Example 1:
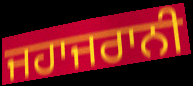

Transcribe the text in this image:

ਜਹਾਜਰਾਨੀ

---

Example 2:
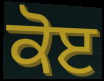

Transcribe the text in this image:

ਕੋੲ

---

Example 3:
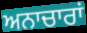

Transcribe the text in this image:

ਅਨਾਚਾਰਾਂ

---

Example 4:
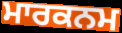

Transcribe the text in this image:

ਮਾਰਕਨਮ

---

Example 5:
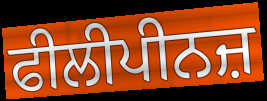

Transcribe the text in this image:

ਫੀਲੀਪੀਨਜ਼